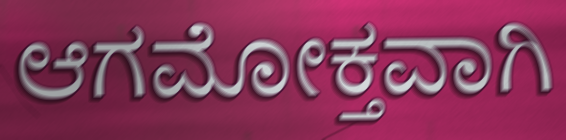
ಆಗಮೋಕ್ತವಾಗಿ